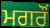
ਮਗਰੌਂ